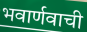
भवार्णवाची